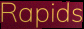
Rapids